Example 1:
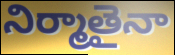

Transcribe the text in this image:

నిర్మాతైనా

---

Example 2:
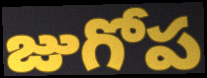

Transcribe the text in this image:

జుగోప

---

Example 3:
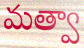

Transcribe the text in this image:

మత్వా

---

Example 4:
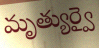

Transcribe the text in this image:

మృత్యుర్వై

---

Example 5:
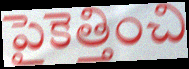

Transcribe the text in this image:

పైకెత్తించి